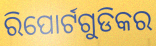
ରିପୋର୍ଟଗୁଡିକର